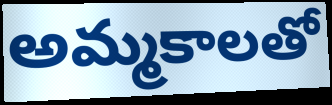
అమ్మకాలతో